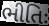
ભીતિઃ